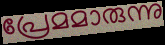
പ്രേമമാരുന്നു